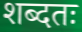
शब्दतः